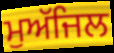
ਮੁਅੱਜਿਲ